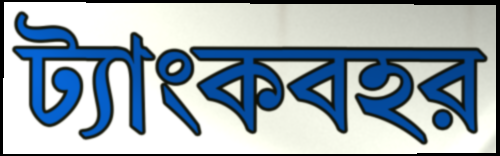
ট্যাংকবহর